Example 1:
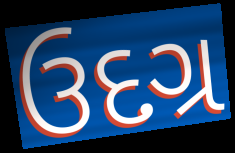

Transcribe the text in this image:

ઉદગ્ર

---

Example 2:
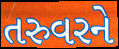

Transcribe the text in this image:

તરુવરને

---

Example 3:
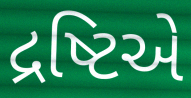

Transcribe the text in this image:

દ્રષ્ટિએ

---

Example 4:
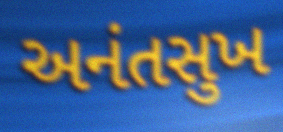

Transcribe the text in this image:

અનંતસુખ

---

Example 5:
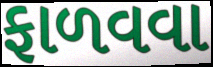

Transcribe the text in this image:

ફાળવવા